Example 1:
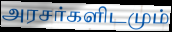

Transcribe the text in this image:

அரசர்களிடமும்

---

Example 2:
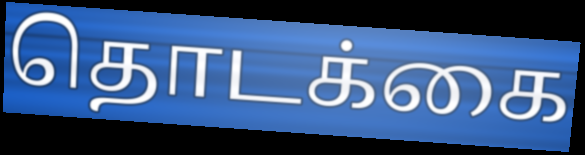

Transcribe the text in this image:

தொடக்கை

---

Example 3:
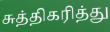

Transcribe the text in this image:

சுத்திகரித்து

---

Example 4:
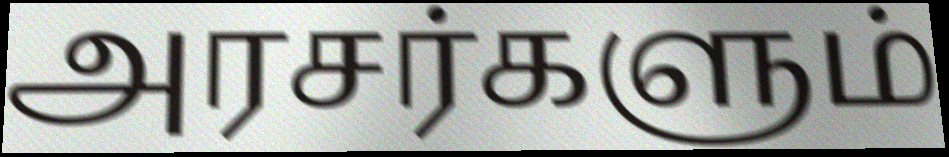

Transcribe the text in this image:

அரசர்களும்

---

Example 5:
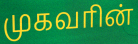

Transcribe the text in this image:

முகவரின்